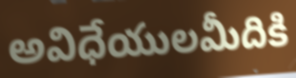
అవిధేయులమీదికి